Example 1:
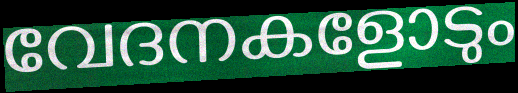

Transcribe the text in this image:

വേദനകളോടും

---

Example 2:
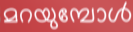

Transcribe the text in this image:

മറയുമ്പോൾ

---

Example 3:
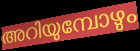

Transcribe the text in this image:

അറിയുമ്പോഴും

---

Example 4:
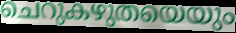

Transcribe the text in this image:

ചെറുകഴുതയെയും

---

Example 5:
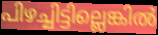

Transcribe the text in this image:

പിഴച്ചിട്ടില്ലെങ്കിൽ